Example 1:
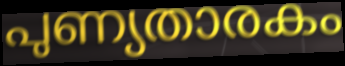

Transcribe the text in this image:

പുണ്യതാരകം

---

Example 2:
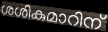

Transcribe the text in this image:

ശശികുമാറിന്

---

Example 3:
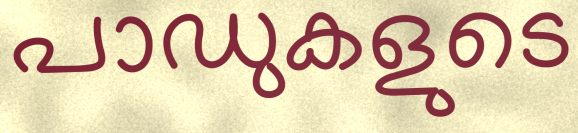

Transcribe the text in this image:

പാഡുകളുടെ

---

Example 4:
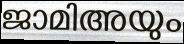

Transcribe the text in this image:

ജാമിഅയും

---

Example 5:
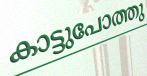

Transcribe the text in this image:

കാട്ടുപോത്തു